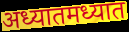
अध्यातमध्यात